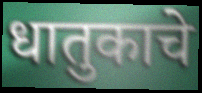
धातुकाचे